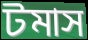
টমাস